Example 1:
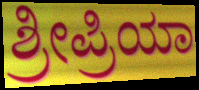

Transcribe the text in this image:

ಶ್ರೀಪ್ರಿಯಾ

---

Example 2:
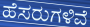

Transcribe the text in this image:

ಹೆಸರುಗಳಿವೆ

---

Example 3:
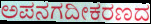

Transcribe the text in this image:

ಅಪನಗದೀಕರಣದ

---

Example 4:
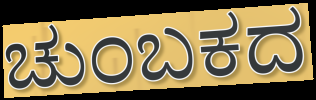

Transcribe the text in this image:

ಚುಂಬಕದ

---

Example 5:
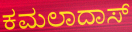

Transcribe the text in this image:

ಕಮಲಾದಾಸ್